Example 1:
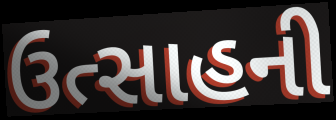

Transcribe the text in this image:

ઉત્સાહની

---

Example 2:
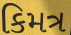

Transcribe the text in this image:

કિમત્ર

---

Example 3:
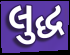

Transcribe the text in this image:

લુદ્ધ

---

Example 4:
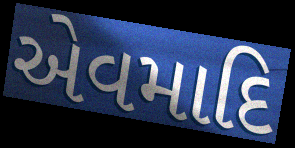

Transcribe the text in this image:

એવમાદિ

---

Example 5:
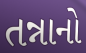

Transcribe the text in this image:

તન્નાનો